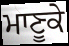
ਮਾਣੂਕੇ